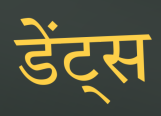
डेंट्स